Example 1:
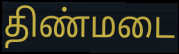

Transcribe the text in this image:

திண்மடை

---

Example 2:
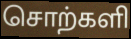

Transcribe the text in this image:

சொற்களி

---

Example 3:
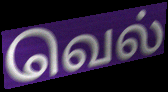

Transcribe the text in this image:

வெல்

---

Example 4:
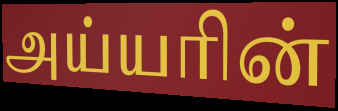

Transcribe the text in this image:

அய்யரின்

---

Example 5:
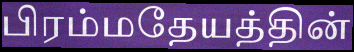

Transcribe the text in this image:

பிரம்மதேயத்தின்